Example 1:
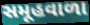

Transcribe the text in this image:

સમૂહવાળા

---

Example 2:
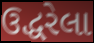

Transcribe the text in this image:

ઉદ્ધરેલા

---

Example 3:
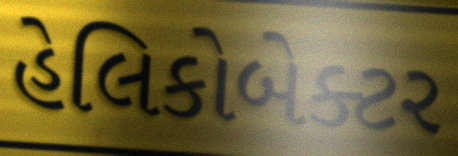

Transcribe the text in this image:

હેલિકોબેક્ટર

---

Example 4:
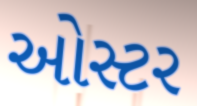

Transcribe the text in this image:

ઓસ્ટર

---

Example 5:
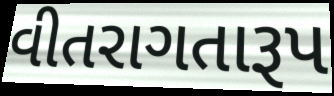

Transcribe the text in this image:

વીતરાગતારૂપ